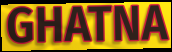
GHATNA